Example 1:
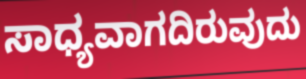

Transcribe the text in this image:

ಸಾಧ್ಯವಾಗದಿರುವುದು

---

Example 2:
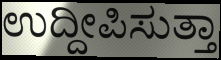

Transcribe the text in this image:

ಉದ್ದೀಪಿಸುತ್ತಾ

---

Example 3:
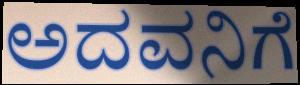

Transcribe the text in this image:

ಅದವನಿಗೆ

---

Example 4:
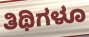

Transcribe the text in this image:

ತಿಥಿಗಳೂ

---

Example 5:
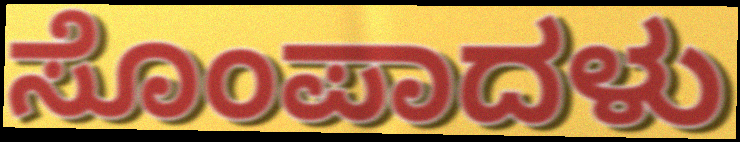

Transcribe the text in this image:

ಸೊಂಪಾದಳು